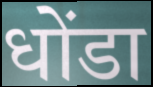
धोंडा